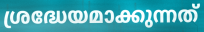
ശ്രദ്ധേയമാക്കുന്നത്